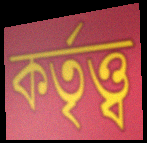
কর্তৃত্ত্ব